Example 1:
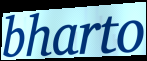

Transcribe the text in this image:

bharto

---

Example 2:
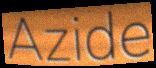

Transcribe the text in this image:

Azide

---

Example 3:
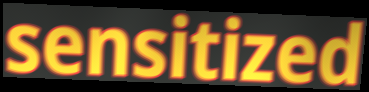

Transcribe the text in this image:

sensitized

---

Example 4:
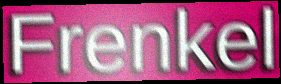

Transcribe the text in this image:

Frenkel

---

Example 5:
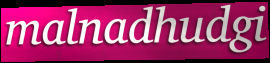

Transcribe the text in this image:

malnadhudgi